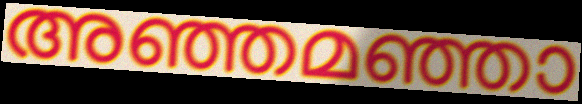
അഞ്ഞമഞ്ഞാ